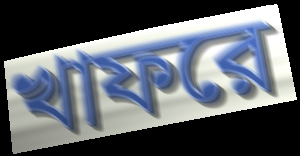
খাফরে